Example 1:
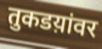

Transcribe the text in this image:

तुकडय़ांवर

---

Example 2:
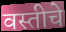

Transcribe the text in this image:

वस्तीचे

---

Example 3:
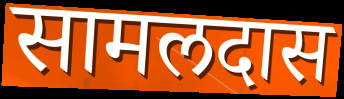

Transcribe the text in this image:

सामलदास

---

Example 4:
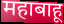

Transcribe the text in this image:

महाबाहू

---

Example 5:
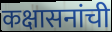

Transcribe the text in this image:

कक्षासनांची